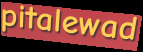
pitalewad